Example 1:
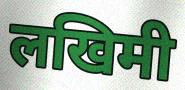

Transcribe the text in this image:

लखिमी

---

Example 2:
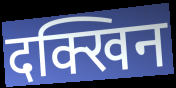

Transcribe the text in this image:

दक्खिन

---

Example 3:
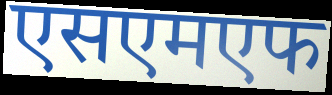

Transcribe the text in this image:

एसएमएफ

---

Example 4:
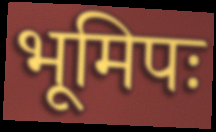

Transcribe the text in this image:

भूमिपः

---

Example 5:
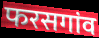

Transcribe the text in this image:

फरसगांव